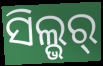
ସିଲ୍ଭର୍